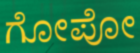
ಗೋಪೋ